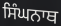
ਸਿੰਘਨਾਥ